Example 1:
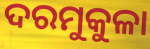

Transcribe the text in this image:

ଦରମୁକୁଳା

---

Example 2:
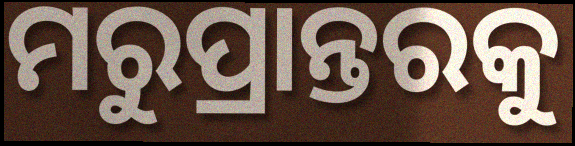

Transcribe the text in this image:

ମରୁପ୍ରାନ୍ତରକୁ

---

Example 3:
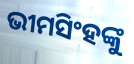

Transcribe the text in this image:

ଭୀମସିଂହଙ୍କୁ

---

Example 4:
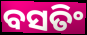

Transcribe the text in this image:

ବସତିଂ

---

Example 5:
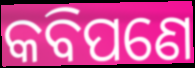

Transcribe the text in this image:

କବିପଣେ